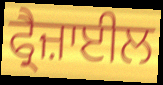
ਫ੍ਰੈਜ਼ਾਈਲ